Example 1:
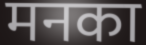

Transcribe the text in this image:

मनका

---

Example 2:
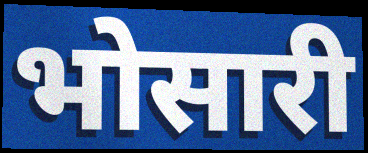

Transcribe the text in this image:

भोसारी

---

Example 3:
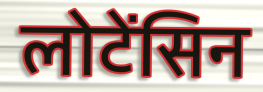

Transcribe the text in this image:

लोटेंसिन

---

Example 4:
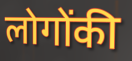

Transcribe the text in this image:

लोगोंकी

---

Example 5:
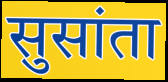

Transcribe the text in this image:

सुसांता